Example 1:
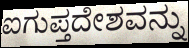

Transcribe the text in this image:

ಐಗುಪ್ತದೇಶವನ್ನು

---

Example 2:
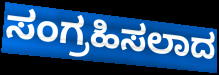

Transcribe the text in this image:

ಸಂಗ್ರಹಿಸಲಾದ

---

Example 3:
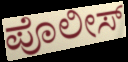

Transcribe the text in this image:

ಪೊಲೀಸ್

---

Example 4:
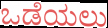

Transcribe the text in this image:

ಒಡೆಯಲು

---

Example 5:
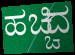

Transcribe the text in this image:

ಹಚ್ಚಿದ